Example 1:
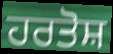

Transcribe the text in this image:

ਹਰਤੋਸ਼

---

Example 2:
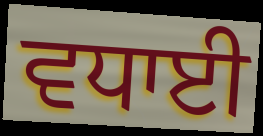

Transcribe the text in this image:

ਵਧਾਈ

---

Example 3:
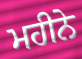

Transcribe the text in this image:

ਮਹੀਨੇ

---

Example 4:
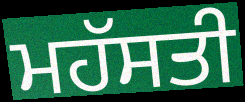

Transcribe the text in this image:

ਮਹੱਸਤੀ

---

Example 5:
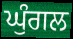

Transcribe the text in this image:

ਘੁੰਗਲ